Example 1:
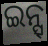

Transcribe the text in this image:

ଇନ୍ସ୍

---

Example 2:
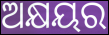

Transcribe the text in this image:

ଅକ୍ଷୟର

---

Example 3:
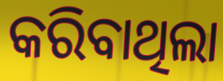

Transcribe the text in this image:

କରିବାଥିଲା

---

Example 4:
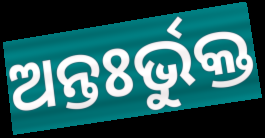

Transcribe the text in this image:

ଅନ୍ତଃର୍ଭୁକ୍ତ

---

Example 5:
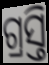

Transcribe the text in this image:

ଗ୍ରସ୍ତି